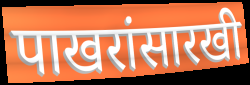
पाखरांसारखी